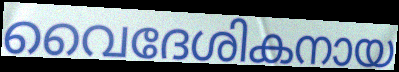
വൈദേശികനായ